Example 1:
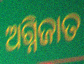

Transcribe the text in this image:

ଅଗ୍ନିଜାତ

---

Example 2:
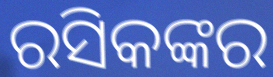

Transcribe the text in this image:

ରସିକଙ୍କର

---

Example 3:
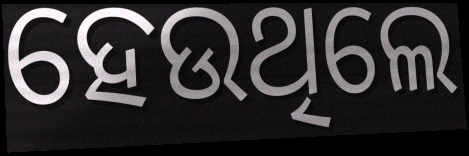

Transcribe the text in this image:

ହେଉଥିଲେ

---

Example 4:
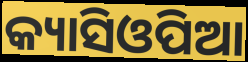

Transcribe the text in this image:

କ୍ୟାସିଓପିଆ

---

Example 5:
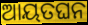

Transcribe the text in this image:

ଆୟତଘନ